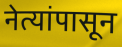
नेत्यांपासून